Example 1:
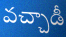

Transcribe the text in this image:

వచ్చాడీ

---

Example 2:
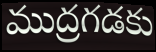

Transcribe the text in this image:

ముద్రగడకు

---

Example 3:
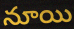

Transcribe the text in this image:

నూయి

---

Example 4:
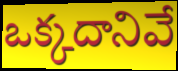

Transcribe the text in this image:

ఒక్కదానివే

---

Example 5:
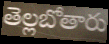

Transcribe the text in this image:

తెల్లబోతారు